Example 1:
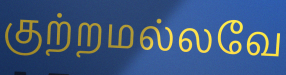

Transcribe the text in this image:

குற்றமல்லவே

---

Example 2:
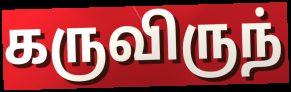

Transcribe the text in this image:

கருவிருந்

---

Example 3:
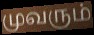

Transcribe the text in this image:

முவரும்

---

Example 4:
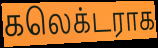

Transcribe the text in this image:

கலெக்டராக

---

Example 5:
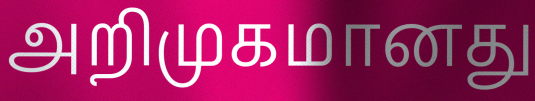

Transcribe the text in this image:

அறிமுகமானது